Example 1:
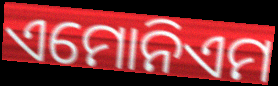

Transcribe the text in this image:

ଏମୋନିଏମ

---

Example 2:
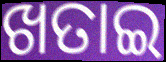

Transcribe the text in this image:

ଖତାଇ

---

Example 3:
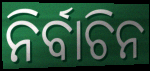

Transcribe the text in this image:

ନିର୍ବାଚିନ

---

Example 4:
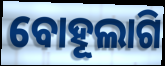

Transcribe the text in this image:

ବୋହୂଲାଗି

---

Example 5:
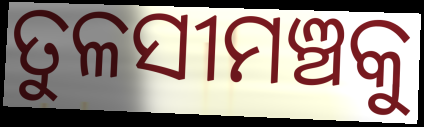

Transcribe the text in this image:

ତୁଳସୀମଞ୍ଚକୁ